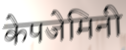
केपजेमिनी